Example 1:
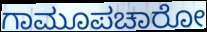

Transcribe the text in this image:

ಗಾಮೂಪಚಾರೋ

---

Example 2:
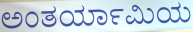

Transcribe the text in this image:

ಅಂತರ್ಯಾಮಿಯ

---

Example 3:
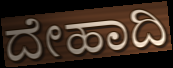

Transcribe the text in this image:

ದೇಹಾದಿ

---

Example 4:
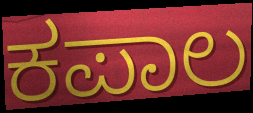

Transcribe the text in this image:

ಕಪಾಲ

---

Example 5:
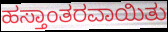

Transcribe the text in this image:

ಹಸ್ತಾಂತರವಾಯಿತು